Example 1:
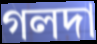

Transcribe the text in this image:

গলদা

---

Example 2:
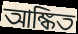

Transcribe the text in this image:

আঙ্কিত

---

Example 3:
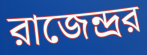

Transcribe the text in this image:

রাজেন্দ্রর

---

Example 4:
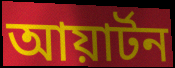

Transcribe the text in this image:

আয়ার্টন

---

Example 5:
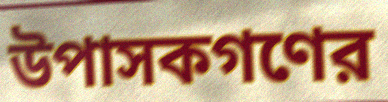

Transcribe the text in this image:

উপাসকগণের